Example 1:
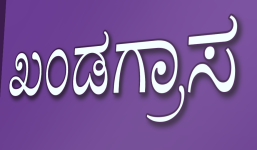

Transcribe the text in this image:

ಖಂಡಗ್ರಾಸ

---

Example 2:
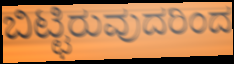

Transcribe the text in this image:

ಬಿಟ್ಟಿರುವುದರಿಂದ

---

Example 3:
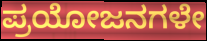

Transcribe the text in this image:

ಪ್ರಯೋಜನಗಳೇ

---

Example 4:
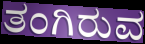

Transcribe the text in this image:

ತಂಗಿರುವ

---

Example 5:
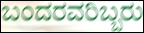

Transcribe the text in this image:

ಬಂದರವರಿಬ್ಬರು